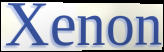
Xenon